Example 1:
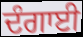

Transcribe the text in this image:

ਦੰਗਾਈ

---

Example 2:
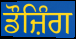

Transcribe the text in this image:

ਡੌਜ਼ਿੰਗ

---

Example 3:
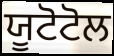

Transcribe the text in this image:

ਯੂਟੋਟੋਲ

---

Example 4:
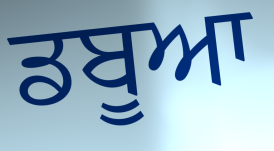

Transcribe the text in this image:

ਡਬੂਆ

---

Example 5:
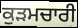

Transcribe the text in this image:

ਕੁੜਮਚਾਰੀ